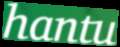
hantu